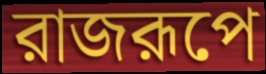
রাজরূপে